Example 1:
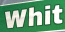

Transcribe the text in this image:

Whit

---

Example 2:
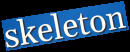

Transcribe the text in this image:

skeleton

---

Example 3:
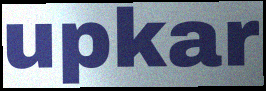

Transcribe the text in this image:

upkar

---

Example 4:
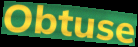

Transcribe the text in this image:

Obtuse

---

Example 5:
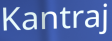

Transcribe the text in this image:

Kantraj